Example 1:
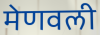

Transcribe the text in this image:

मेणवली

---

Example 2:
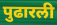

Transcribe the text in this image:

पुढारली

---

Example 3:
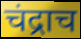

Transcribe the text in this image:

चंद्राच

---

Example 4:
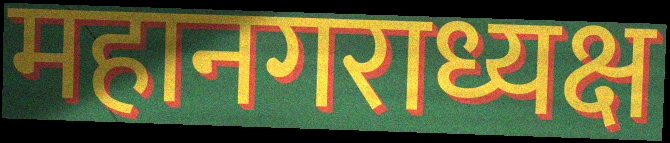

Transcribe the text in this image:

महानगराध्यक्ष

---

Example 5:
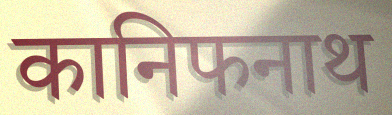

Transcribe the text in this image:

कानिफनाथ